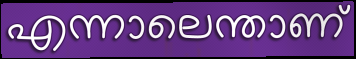
എന്നാലെന്താണ്